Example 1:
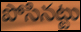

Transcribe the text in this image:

పోసినట్టు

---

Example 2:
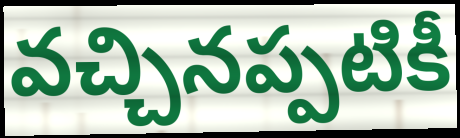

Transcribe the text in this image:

వచ్చినప్పటికీ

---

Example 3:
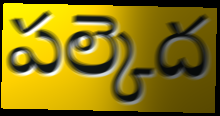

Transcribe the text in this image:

పల్కెద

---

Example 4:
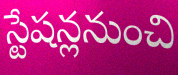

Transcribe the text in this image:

స్టేషన్లనుంచి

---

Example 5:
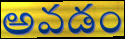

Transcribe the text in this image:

అవడం